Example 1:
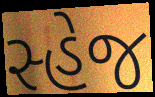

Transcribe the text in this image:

સ્હેજ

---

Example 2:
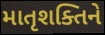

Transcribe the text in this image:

માતૃશક્તિને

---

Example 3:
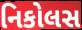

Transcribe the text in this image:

નિકોલસ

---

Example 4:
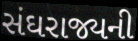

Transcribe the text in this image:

સંઘરાજ્યની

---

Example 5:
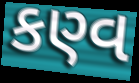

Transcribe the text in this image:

કણ્વ